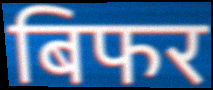
बिफर